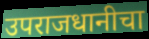
उपराजधानीचा